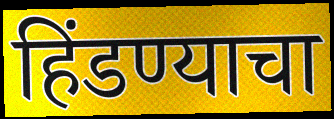
हिंडण्याचा